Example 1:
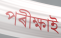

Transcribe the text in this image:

পৰীক্ষাই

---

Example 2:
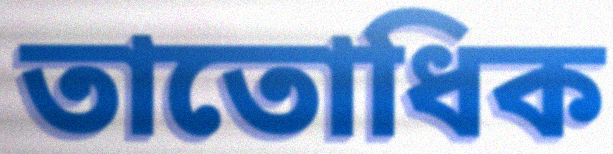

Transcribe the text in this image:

তাতোধিক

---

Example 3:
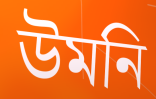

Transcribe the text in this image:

উমনি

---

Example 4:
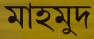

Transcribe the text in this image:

মাহমুদ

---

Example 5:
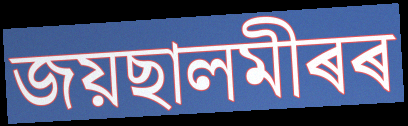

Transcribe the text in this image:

জয়ছালমীৰৰ